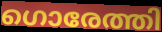
ഗൊരേത്തി